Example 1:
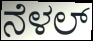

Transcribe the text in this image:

ನೆಳಲ್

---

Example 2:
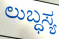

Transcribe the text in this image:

ಲುಬ್ಧಸ್ಯ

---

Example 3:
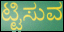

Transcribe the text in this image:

ಟ್ಟಿಸುವ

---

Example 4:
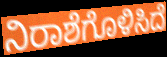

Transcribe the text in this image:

ನಿರಾಶೆಗೊಳಿಸಿದೆ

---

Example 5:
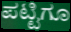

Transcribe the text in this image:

ಪಟ್ಟಿಗೂ